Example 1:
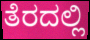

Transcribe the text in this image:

ತೆರದಲ್ಲಿ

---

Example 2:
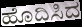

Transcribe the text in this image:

ಹೊದಿಸಿದ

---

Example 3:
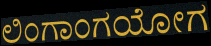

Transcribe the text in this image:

ಲಿಂಗಾಂಗಯೋಗ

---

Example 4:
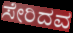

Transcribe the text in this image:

ಸೇರಿದವ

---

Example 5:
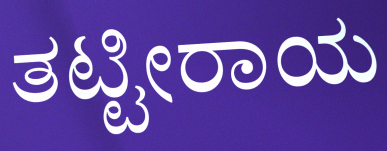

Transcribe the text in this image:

ತಟ್ಟೀರಾಯ